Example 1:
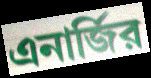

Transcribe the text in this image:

এনার্জির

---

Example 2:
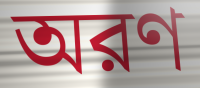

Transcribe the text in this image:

অরণ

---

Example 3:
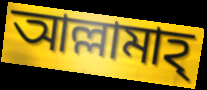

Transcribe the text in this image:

আল্লামাহ্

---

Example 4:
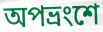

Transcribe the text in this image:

অপভ্রংশে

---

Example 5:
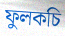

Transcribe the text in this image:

ফুলকচি